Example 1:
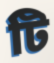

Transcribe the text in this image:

টি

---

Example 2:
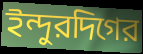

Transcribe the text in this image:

ইন্দুরদিগের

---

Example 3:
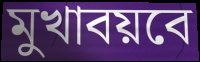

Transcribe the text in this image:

মুখাবয়বে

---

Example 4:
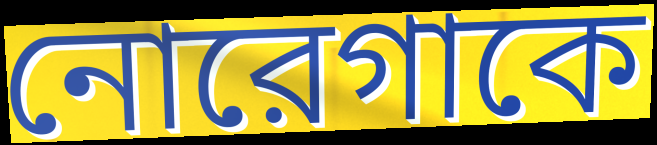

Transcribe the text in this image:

নোরেগাকে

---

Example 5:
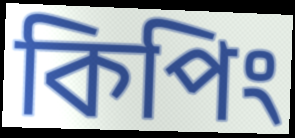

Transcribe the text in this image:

কিপিং